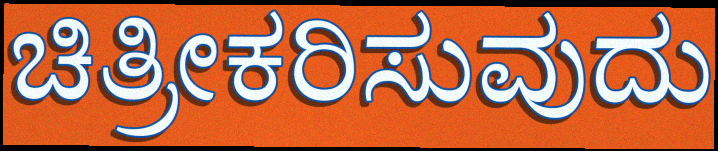
ಚಿತ್ರೀಕರಿಸುವುದು